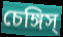
চেঙ্গিস্